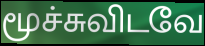
மூச்சுவிடவே